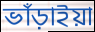
ভাঁড়াইয়া